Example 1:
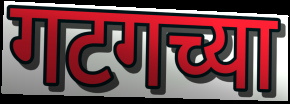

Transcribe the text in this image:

गटगच्या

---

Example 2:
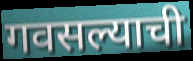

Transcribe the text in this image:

गवसल्याची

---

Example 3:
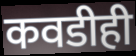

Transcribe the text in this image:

कवडीही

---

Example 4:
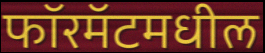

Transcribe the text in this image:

फॉरमॅटमधील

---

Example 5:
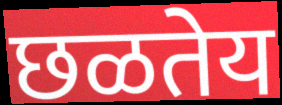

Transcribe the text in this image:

छळतेय